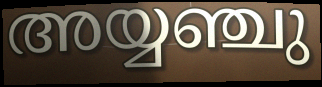
അയ്യഞ്ചു